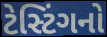
ટેસ્ટિંગનો